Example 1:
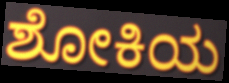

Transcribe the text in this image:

ಶೋಕಿಯ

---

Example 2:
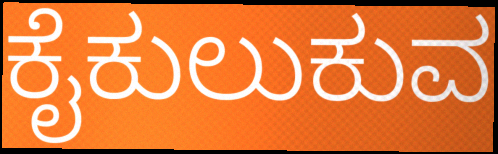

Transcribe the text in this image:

ಕೈಕುಲುಕುವ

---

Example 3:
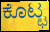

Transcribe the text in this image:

ಕೊಟ್ಟ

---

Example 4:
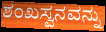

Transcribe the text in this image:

ಶಂಖಸ್ವನವನ್ನು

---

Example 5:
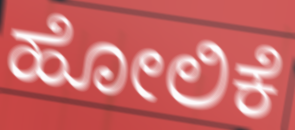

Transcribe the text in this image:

ಹೋಲಿಕೆ